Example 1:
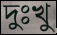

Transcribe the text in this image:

দুঃখু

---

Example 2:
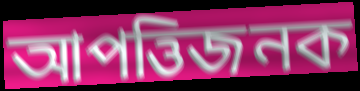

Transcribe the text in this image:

আপত্তিজনক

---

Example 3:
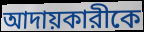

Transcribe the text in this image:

আদায়কারীকে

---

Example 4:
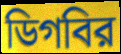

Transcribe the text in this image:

ডিগবির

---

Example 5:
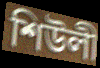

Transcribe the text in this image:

শিউলী